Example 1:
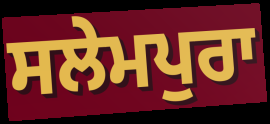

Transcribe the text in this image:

ਸਲੇਮਪੁਰਾ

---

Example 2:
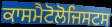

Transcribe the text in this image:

ਕਾਸਮੈਟੋਲੋਜਿਸਟਸ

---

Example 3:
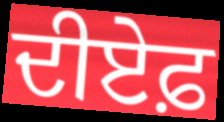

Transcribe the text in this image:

ਦੀਏਫ਼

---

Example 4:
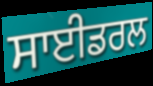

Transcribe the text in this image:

ਸਾਈਡਰਲ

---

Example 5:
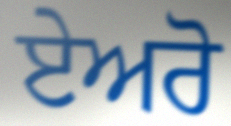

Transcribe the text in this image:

ਏਅਰੋ